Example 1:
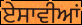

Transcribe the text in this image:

ਏਸਾਵੀਆਂ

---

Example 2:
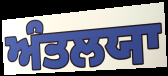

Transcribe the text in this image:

ਅੰਤਲਯਾ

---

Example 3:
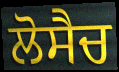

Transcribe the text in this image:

ਲੋਸੈਚ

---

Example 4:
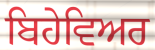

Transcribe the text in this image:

ਬਿਹੇਵਿਅਰ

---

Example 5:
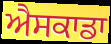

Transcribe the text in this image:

ਐਸਕਾਡਾ